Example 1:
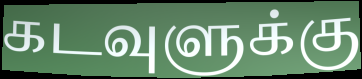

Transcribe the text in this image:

கடவுளுக்கு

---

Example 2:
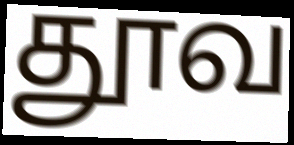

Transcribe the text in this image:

தூவ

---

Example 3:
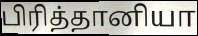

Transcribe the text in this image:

பிரித்தானியா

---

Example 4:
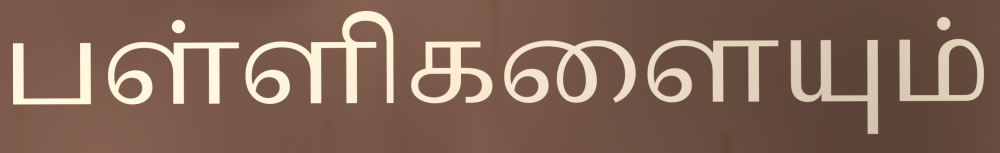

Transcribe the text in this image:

பள்ளிகளையும்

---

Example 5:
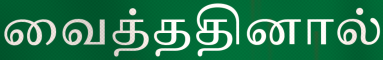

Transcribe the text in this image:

வைத்ததினால்